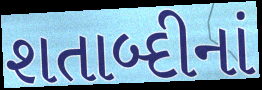
શતાબ્દીનાં